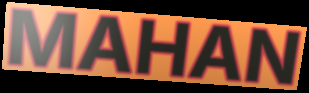
MAHAN